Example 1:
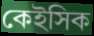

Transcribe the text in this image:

কেইসিক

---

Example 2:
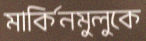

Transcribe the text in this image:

মার্কিনমুলুকে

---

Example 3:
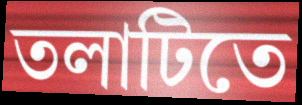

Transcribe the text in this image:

তলাটিতে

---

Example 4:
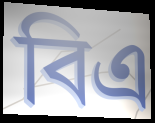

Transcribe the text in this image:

বিএ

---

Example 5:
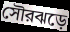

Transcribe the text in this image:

সৌরঝড়ে